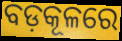
ବଡ଼କୂଳରେ